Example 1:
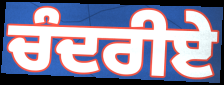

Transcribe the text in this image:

ਚੰਦਰੀਏ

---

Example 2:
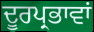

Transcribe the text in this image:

ਦੂਰਪ੍ਰਭਾਵਾਂ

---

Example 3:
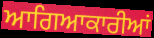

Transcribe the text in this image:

ਆਗਿਆਕਾਰੀਆਂ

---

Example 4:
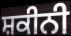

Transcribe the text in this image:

ਸ਼ਕੀਨੀ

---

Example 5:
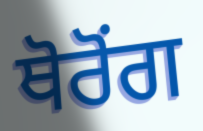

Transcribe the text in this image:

ਥੋਰੋਂਗ